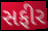
સફીર